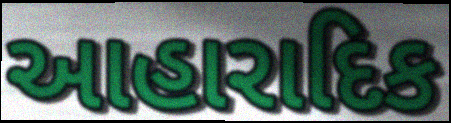
આહારાદિક